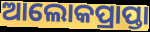
ଆଲୋକପ୍ରାପ୍ତା